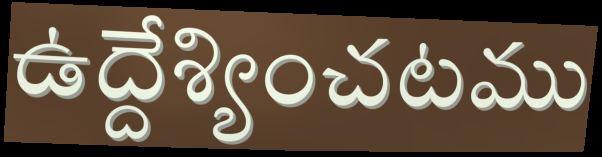
ఉద్దేశ్యించటము